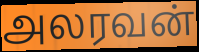
அலரவன்